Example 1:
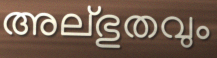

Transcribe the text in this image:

അല്ഭുതവും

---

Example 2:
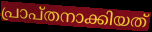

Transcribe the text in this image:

പ്രാപ്തനാക്കിയത്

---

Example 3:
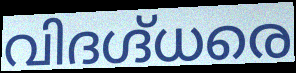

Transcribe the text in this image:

വിദഗ്ദ്ധരെ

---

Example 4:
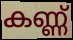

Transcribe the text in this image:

കണ്ണ്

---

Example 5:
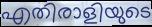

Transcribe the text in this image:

എതിരാളിയുടെ